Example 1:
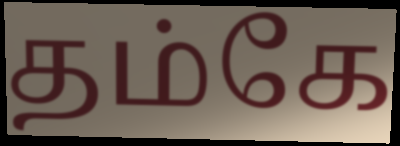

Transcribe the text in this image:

தம்கே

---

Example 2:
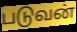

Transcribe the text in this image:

படுவன்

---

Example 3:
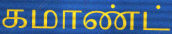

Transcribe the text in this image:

கமாண்ட்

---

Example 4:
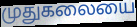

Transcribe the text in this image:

முதுகலையை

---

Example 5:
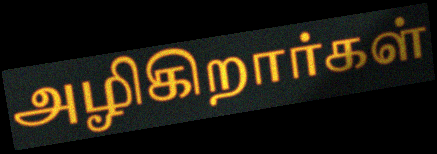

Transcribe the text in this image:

அழிகிறார்கள்